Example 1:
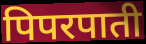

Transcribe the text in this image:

पिपरपाती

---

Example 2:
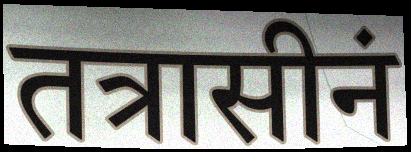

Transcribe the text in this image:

तत्रासीनं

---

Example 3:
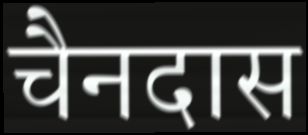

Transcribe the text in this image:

चैनदास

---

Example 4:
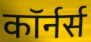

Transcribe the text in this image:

कॉर्नर्स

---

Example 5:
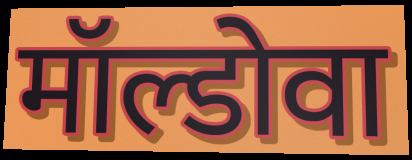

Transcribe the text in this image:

मॉल्डोवा